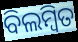
ବିଲମ୍ୱିତ